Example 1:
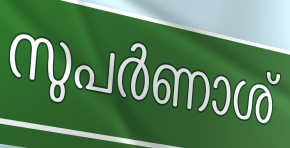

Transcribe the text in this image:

സുപർണാശ്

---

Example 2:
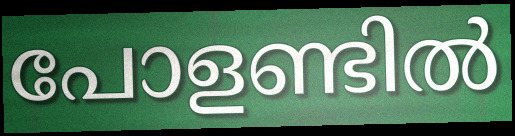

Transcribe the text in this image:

പോളണ്ടിൽ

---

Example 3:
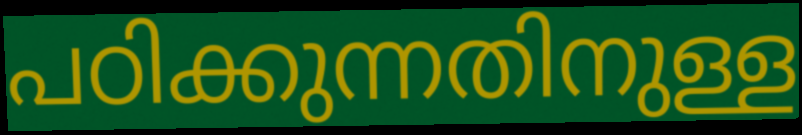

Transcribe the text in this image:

പഠിക്കുന്നതിനുള്ള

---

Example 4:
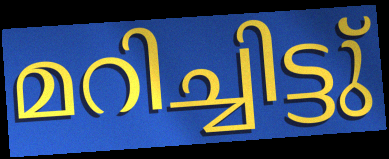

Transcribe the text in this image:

മറിച്ചിട്ടു്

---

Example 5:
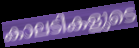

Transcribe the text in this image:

കാലടികളുടെ